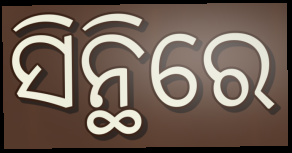
ସିନ୍ଥିରେ